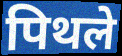
पिथले